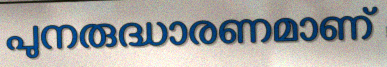
പുനരുദ്ധാരണമാണ്